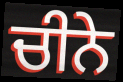
ਚੀਨੇ